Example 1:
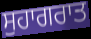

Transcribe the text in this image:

ਸੁਹਾਗਰਾਤ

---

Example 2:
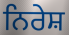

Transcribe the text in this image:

ਨਿਰੇਸ਼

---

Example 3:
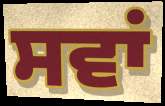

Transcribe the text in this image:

ਸਵਾਂ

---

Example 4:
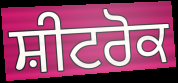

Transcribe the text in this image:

ਸ਼ੀਟਰੋਕ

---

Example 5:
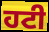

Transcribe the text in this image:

ਹਟੀ